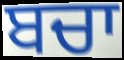
ਬਚਾ